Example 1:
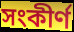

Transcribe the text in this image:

সংকীৰ্ণ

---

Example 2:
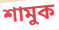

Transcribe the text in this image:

শামুক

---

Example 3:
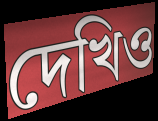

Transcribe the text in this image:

দেখিও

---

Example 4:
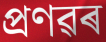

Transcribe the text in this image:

প্ৰণৱৰ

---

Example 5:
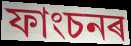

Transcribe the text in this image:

ফাংচনৰ